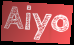
Aiyo